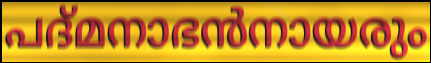
പദ്മനാഭൻനായരും